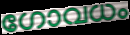
ഗോവധം